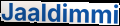
Jaaldimmi